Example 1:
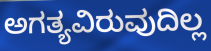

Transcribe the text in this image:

ಅಗತ್ಯವಿರುವುದಿಲ್ಲ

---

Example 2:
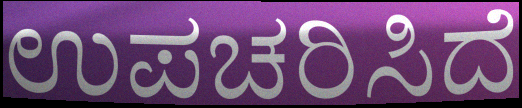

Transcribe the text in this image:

ಉಪಚರಿಸಿದೆ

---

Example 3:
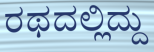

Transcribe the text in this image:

ರಥದಲ್ಲಿದ್ದು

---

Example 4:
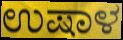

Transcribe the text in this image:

ಉಷಾಳ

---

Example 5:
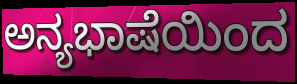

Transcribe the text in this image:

ಅನ್ಯಭಾಷೆಯಿಂದ